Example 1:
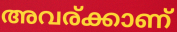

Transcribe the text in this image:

അവര്ക്കാണ്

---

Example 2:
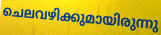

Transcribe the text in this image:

ചെലവഴിക്കുമായിരുന്നു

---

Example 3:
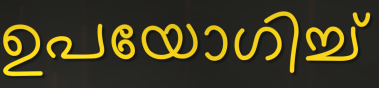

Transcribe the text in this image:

ഉപയോഗിച്ച്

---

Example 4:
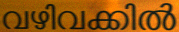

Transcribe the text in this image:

വഴിവക്കിൽ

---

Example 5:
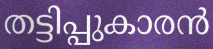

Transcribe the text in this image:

തട്ടിപ്പുകാരൻ